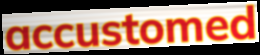
accustomed